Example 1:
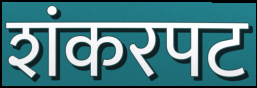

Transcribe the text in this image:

शंकरपट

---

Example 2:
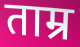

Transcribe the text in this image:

ताम्र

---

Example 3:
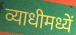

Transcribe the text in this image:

व्याधीमध्यें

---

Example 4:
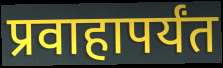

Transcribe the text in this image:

प्रवाहापर्यंत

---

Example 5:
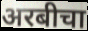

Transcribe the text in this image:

अरबीचा